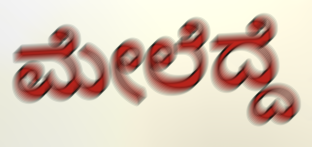
ಮೇಲೆದ್ದೆ